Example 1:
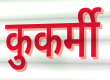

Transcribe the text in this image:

कुकर्मी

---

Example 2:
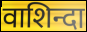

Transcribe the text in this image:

वाशिन्दा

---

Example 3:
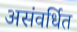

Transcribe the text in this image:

असंवर्धित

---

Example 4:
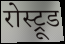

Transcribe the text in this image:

रोस्ट्रूड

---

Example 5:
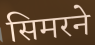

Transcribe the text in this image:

सिमरने